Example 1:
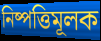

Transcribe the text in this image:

নিষ্পত্তিমূলক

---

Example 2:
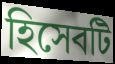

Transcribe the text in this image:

হিসেবটি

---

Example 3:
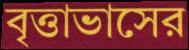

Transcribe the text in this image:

বৃত্তাভাসের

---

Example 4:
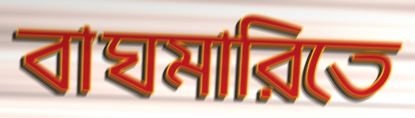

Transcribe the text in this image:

বাঘমারিতে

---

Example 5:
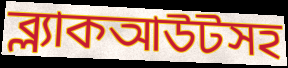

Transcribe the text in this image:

ব্ল্যাকআউটসহ